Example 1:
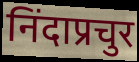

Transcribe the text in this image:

निंदाप्रचुर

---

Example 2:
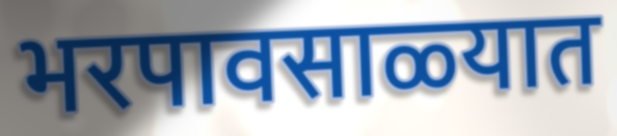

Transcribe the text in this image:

भरपावसाळ्यात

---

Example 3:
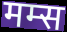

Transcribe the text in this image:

मम्स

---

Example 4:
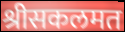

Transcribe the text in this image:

श्रीसकलमत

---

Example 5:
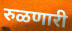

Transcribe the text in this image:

रुळणारी